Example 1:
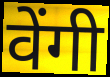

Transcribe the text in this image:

वेंगी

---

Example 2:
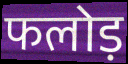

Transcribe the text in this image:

फलोड़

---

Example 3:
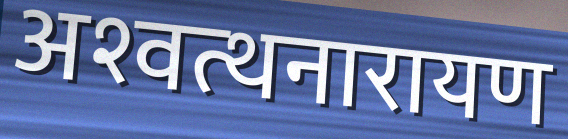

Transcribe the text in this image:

अश्वत्थनारायण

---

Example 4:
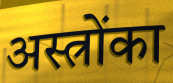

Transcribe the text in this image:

अस्त्रोंका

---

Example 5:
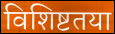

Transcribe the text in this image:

विशिष्टतया